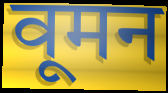
वूमन